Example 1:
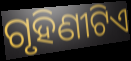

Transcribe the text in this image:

ଗୃହିଣୀଟିଏ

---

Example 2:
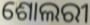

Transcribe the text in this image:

ଶୋଲରୀ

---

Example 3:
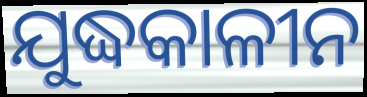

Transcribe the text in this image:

ଯୁଦ୍ଧକାଳୀନ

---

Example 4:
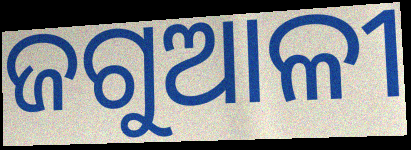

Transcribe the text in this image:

ଜଗୁଆଳୀ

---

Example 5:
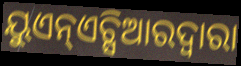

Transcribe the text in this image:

ୟୁଏନ୍ଏଚ୍ସିଆରଦ୍ୱାରା